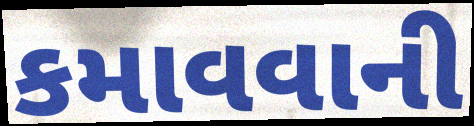
કમાવવાની